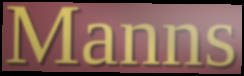
Manns